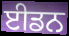
ਈਡਨ